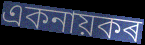
একনায়কৰ